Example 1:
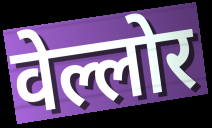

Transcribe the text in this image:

वेल्लोर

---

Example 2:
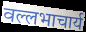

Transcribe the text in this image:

वल्‍लभाचार्य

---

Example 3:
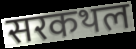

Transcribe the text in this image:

सरकथल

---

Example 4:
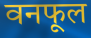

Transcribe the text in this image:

वनफूल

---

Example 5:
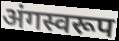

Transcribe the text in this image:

अंगस्वरूप